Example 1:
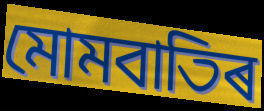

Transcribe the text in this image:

মোমবাতিৰ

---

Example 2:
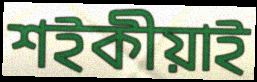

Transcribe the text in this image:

শইকীয়াই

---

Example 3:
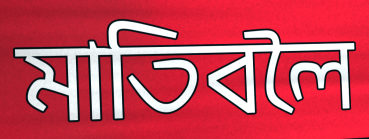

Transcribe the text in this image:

মাতিবলৈ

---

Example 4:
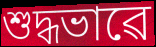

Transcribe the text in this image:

শুদ্ধভাৱে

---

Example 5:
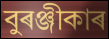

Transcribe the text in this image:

বুৰঞ্জীকাৰ